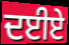
ਦਈਏ